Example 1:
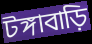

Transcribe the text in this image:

টঙ্গাবাড়ি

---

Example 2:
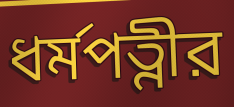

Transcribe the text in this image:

ধর্মপত্নীর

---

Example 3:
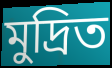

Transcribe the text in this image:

মুদ্রিত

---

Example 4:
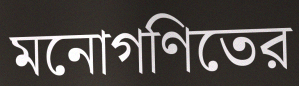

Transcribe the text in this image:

মনোগণিতের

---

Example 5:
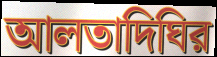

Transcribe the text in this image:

আলতাদিঘির